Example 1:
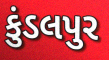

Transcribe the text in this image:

કુંડલપુર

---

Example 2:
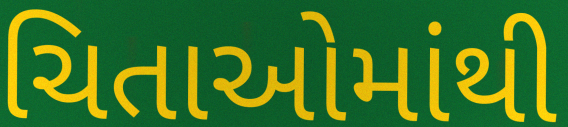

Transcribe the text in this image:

ચિતાઓમાંથી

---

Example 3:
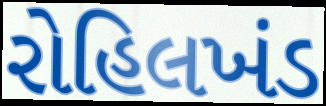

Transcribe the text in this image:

રોહિલખંડ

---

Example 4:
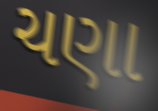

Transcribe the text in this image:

ચણા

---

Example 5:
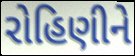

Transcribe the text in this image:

રોહિણીને